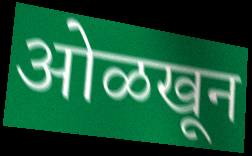
ओळखून